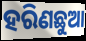
ହରିଣଛୁଆ